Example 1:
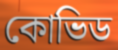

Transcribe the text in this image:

কোভিড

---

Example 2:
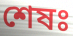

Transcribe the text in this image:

শেষঃ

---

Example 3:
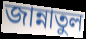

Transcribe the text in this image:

জান্নাতুল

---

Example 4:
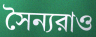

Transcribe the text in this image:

সৈন্যরাও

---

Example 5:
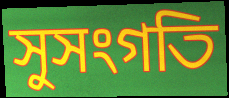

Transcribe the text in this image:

সুসংগতি